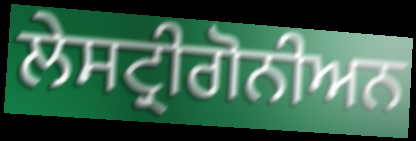
ਲੇਸਟ੍ਰੀਗੋਨੀਅਨ